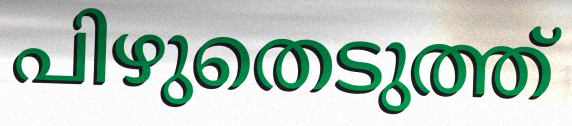
പിഴുതെടുത്ത്